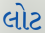
લોટ